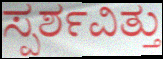
ಸ್ಪರ್ಶವಿತ್ತು